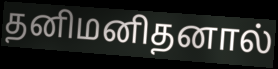
தனிமனிதனால்